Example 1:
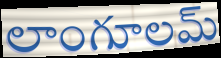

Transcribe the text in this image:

లాంగూలమ్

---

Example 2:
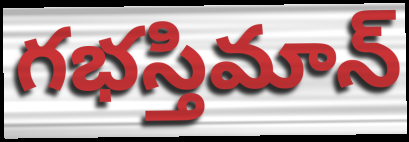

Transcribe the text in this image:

గభస్తిమాన్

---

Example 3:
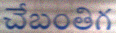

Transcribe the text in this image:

చేబంతిగ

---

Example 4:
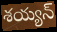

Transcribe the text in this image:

శయ్యన్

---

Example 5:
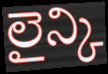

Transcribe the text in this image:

లైన్కి